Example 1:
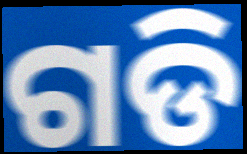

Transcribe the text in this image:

ଗଡି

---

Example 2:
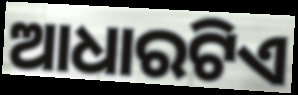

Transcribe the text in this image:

ଆଧାରଟିଏ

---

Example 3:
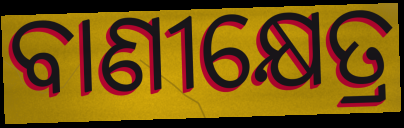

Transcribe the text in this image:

ବାଣୀକ୍ଷେତ୍ର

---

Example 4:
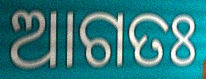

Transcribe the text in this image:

ଆଗତଃ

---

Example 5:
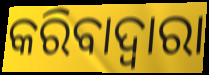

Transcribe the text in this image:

କରିବାଦ୍ବାରା